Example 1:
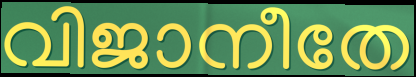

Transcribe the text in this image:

വിജാനീതേ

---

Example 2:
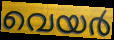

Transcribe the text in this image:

വെയർ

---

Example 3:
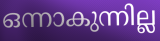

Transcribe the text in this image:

ഒന്നാകുന്നില്ല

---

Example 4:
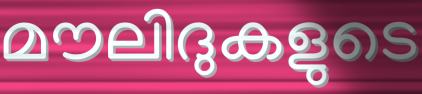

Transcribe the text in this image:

മൗലിദുകളുടെ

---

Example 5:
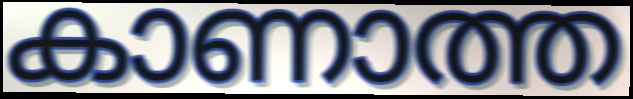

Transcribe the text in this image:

കാണാത്ത